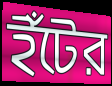
ইঁটের